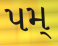
પમ્